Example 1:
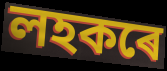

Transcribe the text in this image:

লহকৰে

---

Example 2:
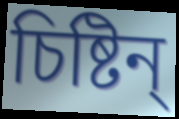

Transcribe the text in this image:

চিষ্টিন্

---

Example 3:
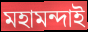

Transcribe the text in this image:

মহামন্দাই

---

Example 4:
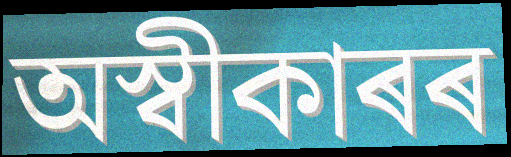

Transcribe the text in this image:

অস্বীকাৰৰ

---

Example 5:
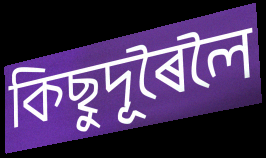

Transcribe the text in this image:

কিছুদূৰৈলৈ